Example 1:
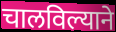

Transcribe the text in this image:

चालविल्याने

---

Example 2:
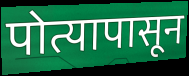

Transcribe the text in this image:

पोत्यापासून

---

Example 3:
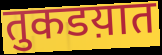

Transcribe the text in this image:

तुकडय़ात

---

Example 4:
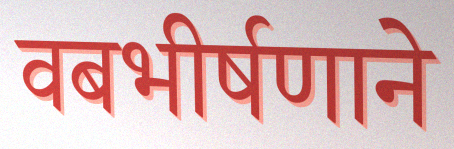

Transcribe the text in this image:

वबभीर्षणाने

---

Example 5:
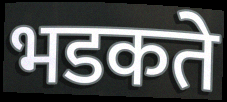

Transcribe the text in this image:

भडकते